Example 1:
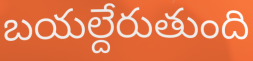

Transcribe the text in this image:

బయల్దేరుతుంది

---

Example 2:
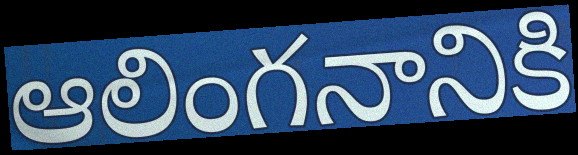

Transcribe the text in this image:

ఆలింగనానికి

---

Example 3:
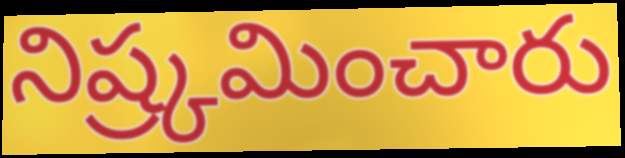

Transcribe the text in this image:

నిష్ర్కమించారు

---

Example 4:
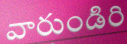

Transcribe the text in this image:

వారుండిరి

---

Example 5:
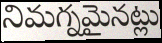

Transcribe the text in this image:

నిమగ్నమైనట్లు